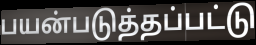
பயன்படுத்தப்பட்டு